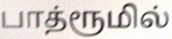
பாத்ரூமில்